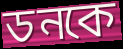
ডনকে